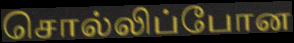
சொல்லிப்போன